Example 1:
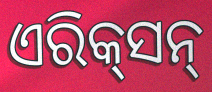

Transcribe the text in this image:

ଏରିକ୍‌ସନ୍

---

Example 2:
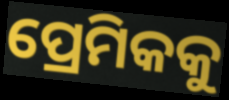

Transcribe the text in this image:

ପ୍ରେମିକକୁ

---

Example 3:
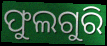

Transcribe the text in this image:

ଫୁଲଗୁରି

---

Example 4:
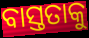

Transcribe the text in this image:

ବାସ୍ତତାକୁ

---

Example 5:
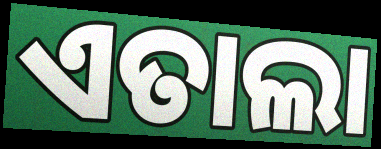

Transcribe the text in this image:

ଏତାଲା